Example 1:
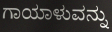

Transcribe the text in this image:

ಗಾಯಾಳುವನ್ನು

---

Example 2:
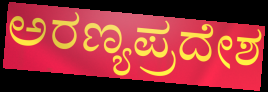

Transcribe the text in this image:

ಅರಣ್ಯಪ್ರದೇಶ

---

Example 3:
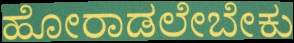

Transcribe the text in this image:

ಹೋರಾಡಲೇಬೇಕು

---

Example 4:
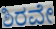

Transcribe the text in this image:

ಶಿರವೇ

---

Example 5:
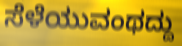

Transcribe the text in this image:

ಸೆಳೆಯುವಂಥದ್ದು